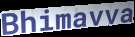
Bhimavva